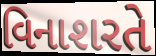
વિનાશરતે